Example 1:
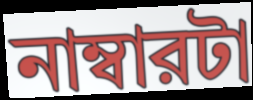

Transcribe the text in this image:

নাম্বারটা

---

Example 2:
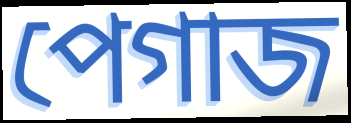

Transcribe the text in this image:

পেগাজ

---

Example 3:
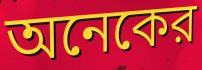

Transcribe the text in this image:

অনেকের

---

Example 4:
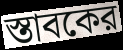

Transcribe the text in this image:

স্তাবকের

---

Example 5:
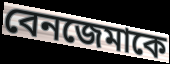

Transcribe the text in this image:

বেনজেমাকে